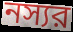
নস্যর